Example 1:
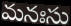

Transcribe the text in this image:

మనఃసు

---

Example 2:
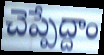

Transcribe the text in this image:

చెప్పేద్దాం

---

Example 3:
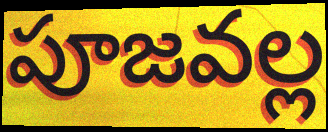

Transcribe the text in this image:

పూజవల్ల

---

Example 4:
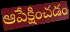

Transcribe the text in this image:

ఆపేక్షించడం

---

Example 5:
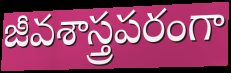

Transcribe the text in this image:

జీవశాస్త్రపరంగా